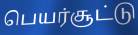
பெயர்சூட்டு